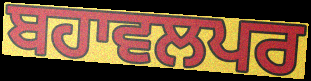
ਬਹਾਵਲਪਰ